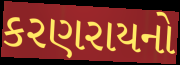
કરણરાયનો